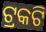
ଟ୍ରକଟି